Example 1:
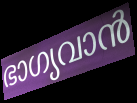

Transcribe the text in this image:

ഭാഗ്യവാൻ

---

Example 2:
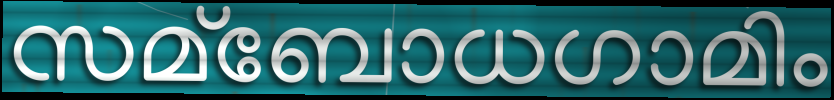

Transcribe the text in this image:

സമ്ബോധഗാമിം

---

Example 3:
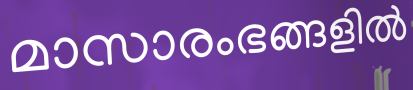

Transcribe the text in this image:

മാസാരംഭങ്ങളിൽ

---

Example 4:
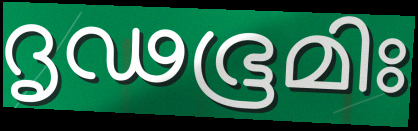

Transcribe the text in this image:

ദൃഢഭൂമിഃ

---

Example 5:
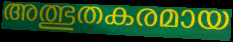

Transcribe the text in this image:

അത്ഭുതകരമായ